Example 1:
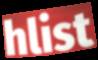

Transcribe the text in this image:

hlist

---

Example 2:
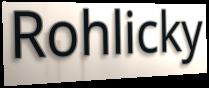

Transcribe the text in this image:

Rohlicky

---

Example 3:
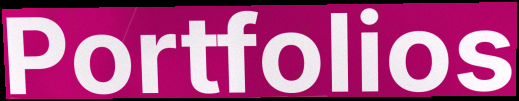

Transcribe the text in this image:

Portfolios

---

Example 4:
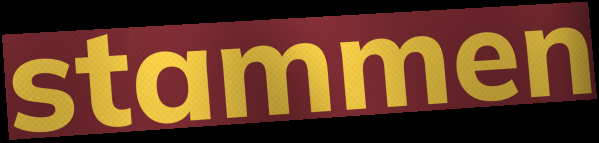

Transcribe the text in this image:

stammen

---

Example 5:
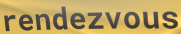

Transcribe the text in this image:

rendezvous